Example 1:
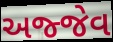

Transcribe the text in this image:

અજ્જેવ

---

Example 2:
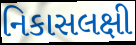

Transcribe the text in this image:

નિકાસલક્ષી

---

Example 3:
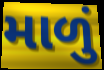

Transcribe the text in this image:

માળું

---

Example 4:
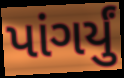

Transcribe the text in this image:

પાંગર્યું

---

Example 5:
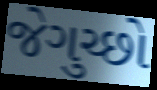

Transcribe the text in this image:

જેગુચ્છો